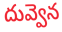
దువ్వెన